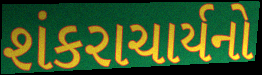
શંકરાચાર્યનો